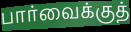
பார்வைக்குத்